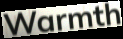
Warmth